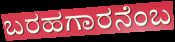
ಬರಹಗಾರನೆಂಬ